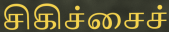
சிகிச்சைச்